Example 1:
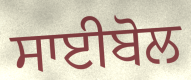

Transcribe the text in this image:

ਸਾਈਬੋਲ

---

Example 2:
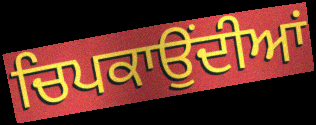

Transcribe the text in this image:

ਚਿਪਕਾਉਂਦੀਆਂ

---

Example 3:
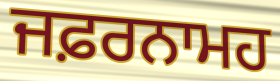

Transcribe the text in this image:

ਜਫ਼ਰਨਾਮਹ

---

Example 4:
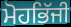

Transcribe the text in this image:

ਮੋਹਭਿੱਜੀ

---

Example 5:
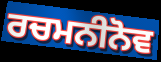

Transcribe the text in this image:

ਰਚਮਨੀਨੋਵ